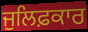
ਜੁਲਿਫ਼ਕਾਰ